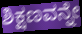
ಶಿಕ್ಷಣವನ್ನೇ